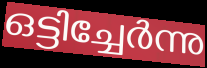
ഒട്ടിച്ചേർന്നു